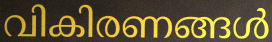
വികിരണങ്ങൾ